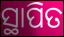
ସ୍ଥାପିତ